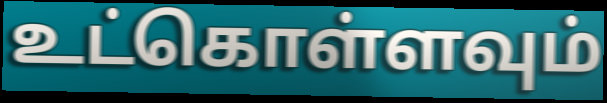
உட்கொள்ளவும்